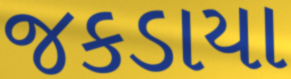
જકડાયા